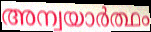
അന്വയാർത്ഥം